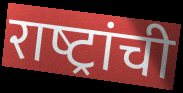
राष्ट्रांची